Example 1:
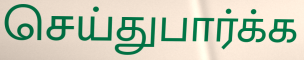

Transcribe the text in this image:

செய்துபார்க்க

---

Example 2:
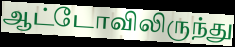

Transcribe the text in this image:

ஆட்டோவிலிருந்து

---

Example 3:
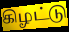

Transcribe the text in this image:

கிழட்டு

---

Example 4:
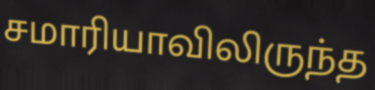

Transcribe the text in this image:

சமாரியாவிலிருந்த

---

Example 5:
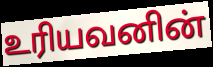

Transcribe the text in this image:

உரியவனின்